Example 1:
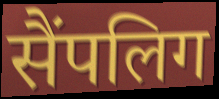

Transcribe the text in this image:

सैंपलिग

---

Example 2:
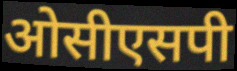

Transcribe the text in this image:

ओसीएसपी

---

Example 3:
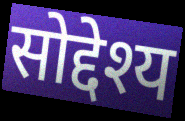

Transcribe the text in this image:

सोद्देश्य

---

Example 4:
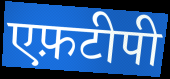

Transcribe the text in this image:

एफ़टीपी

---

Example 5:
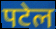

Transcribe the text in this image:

पटेल